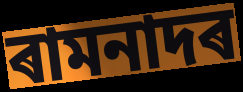
ৰামনাদৰ